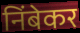
निंबेकर